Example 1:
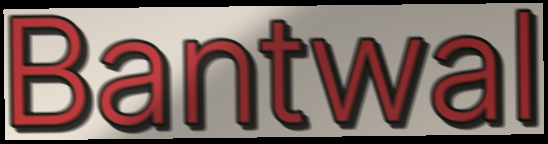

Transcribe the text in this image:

Bantwal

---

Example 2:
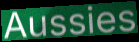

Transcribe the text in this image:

Aussies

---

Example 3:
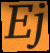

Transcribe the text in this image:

Ej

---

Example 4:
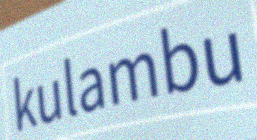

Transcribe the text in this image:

kulambu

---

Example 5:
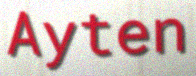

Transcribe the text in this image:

Ayten